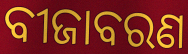
ବୀଜାବରଣ